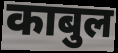
काबुल